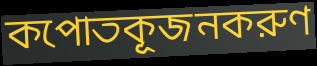
কপোতকূজনকরুণ